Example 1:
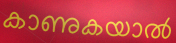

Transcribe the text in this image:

കാണുകയാൽ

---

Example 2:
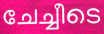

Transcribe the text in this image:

ചേച്ചീടെ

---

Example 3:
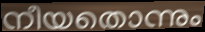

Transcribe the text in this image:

നീയതൊന്നും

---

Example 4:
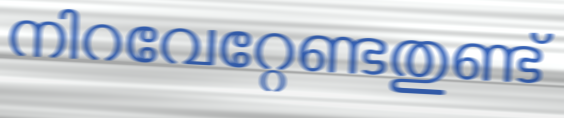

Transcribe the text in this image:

നിറവേറ്റേണ്ടതുണ്ട്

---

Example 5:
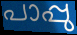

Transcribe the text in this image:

പാപ്പു